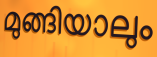
മുങ്ങിയാലും